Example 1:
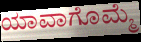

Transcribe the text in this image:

ಯಾವಾಗೊಮ್ಮೆ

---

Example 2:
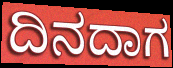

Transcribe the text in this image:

ದಿನದಾಗ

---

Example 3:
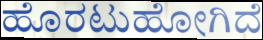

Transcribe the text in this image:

ಹೊರಟುಹೋಗಿದೆ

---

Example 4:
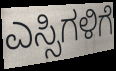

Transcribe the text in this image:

ಎಸ್ಸಿಗಳಿಗೆ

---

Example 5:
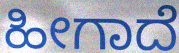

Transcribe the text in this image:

ಹೀಗಾದೆ